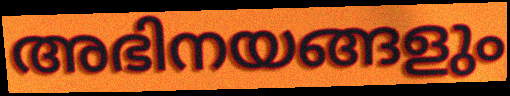
അഭിനയങ്ങളും